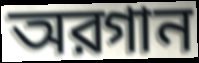
অরগান